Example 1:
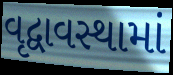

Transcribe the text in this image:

વૃદ્વાવસ્થામાં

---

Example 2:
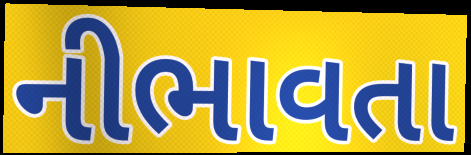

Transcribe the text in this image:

નીભાવતા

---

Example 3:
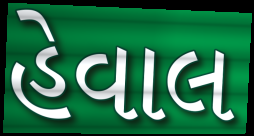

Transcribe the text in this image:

હેવાલ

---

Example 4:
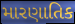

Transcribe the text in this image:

મારણાતિક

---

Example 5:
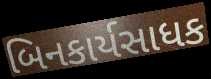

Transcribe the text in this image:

બિનકાર્યસાધક